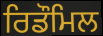
ਰਿਡੌਮਿਲ